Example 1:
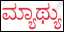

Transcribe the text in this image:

ಮ್ಯಾಥ್ಯು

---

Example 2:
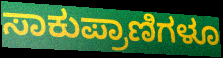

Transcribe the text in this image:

ಸಾಕುಪ್ರಾಣಿಗಳೂ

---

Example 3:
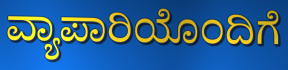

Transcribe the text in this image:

ವ್ಯಾಪಾರಿಯೊಂದಿಗೆ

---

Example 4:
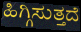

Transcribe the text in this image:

ಹಿಗ್ಗಿಸುತ್ತದೆ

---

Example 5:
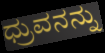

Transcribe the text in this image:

ಧ್ರುವನನ್ನು